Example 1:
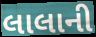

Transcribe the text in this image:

લાલાની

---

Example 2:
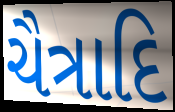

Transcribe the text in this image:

ચૈત્રાદિ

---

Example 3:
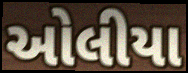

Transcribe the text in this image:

ઓલીયા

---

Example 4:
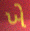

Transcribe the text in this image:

ખે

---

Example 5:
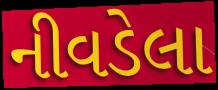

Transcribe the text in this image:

નીવડેલા